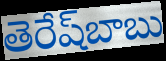
తెరేష్‌బాబు